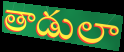
తాడులా